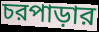
চরপাড়ার